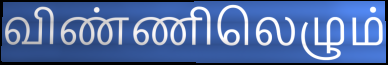
விண்ணிலெழும்